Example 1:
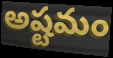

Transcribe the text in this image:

అష్టమం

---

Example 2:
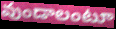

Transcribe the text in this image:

వుండాలంటూ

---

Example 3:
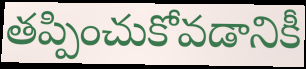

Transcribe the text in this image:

తప్పించుకోవడానికీ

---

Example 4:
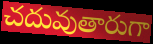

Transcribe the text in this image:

చదువుతారుగా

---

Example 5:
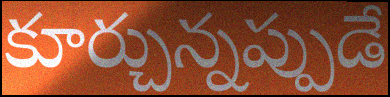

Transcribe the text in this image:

కూర్చున్నప్పుడే